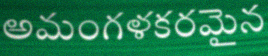
అమంగళకరమైన